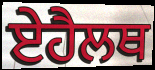
ਏਹੈਲਥ